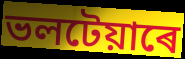
ভলটেয়াৰে